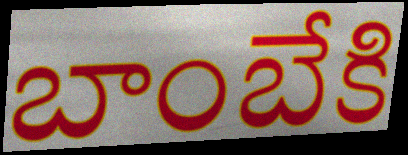
బాంబేకి